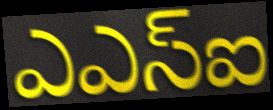
ఎఎస్ఐ